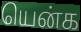
யென்க